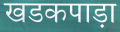
खडकपाड़ा